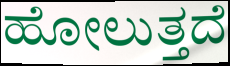
ಹೋಲುತ್ತದೆ